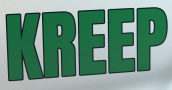
KREEP